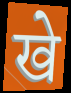
खे